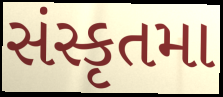
સંસ્કૃતમા